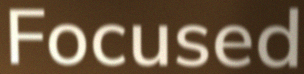
Focused